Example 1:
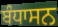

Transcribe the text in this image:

ਬੰਧਾਸਨ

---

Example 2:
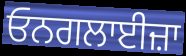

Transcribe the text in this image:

ਓਨਗਲਾਈਜ਼ਾ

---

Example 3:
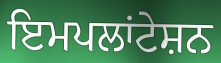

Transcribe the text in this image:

ਇਮਪਲਾਂਟੇਸ਼ਨ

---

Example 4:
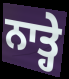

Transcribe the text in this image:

ਨਾਤ੍ਹੇ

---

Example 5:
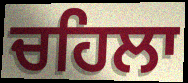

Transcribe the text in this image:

ਚਹਿਲਾ